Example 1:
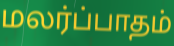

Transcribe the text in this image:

மலர்ப்பாதம்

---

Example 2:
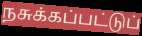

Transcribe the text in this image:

நசுக்கப்பட்டுப்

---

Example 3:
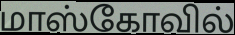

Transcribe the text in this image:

மாஸ்கோவில்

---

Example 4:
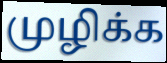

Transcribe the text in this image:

முழிக்க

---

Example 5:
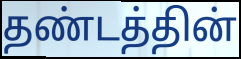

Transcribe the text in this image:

தண்டத்தின்